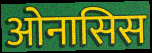
ओनासिस